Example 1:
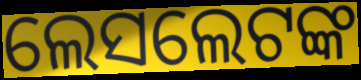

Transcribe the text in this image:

ଲେସଲେଟଙ୍କ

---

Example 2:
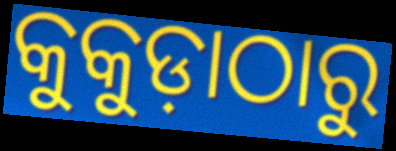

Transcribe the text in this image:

କୁକୁଡ଼ାଠାରୁ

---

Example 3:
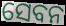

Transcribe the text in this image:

ସେବନ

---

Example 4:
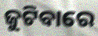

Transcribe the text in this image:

ଜୁଟିବାରେ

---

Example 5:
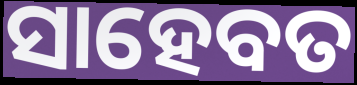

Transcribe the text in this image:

ସାହେବତ